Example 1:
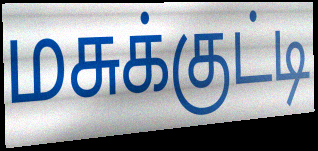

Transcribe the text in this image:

மசுக்குட்டி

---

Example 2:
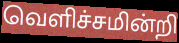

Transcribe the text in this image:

வெளிச்சமின்றி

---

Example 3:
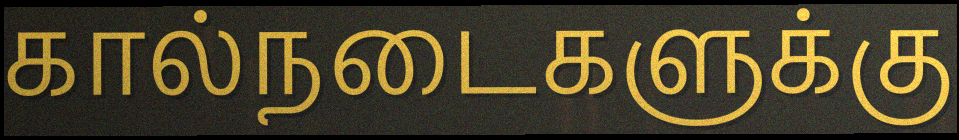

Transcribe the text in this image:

கால்நடைகளுக்கு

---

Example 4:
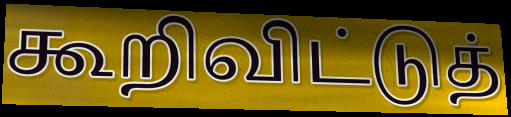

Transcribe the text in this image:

கூறிவிட்டுத்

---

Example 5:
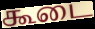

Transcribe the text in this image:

கூடை